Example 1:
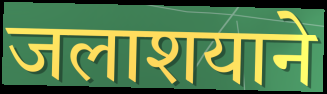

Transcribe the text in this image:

जलाशयाने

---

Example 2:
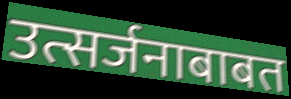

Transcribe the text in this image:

उत्सर्जनाबाबत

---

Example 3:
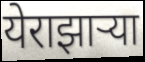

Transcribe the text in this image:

येराझाऱ्या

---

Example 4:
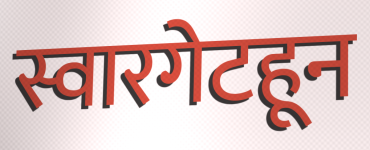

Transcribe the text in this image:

स्वारगेटहून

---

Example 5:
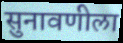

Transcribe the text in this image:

सुनावणीला